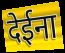
देईना